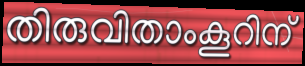
തിരുവിതാംകൂറിന്